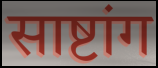
साष्टांग